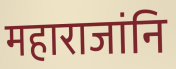
महाराजांनि